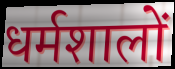
धर्मशालों